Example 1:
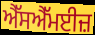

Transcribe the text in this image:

ਐੱਸਐੱਮਈਜ਼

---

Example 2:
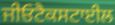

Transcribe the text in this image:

ਜੀਓਟੈਕਸਟਾਈਲ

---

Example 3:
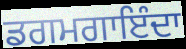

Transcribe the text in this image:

ਡਗਮਗਾਇੰਦਾ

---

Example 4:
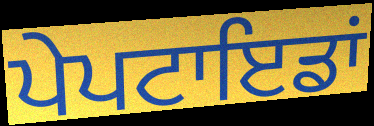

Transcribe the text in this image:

ਪੇਪਟਾਇਡਾਂ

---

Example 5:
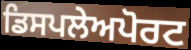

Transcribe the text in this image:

ਡਿਸਪਲੇਅਪੋਰਟ